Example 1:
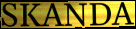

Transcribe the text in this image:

SKANDA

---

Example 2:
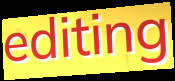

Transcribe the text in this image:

editing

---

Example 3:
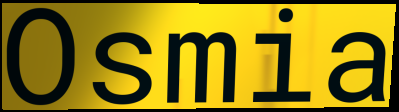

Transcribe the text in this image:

Osmia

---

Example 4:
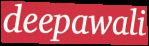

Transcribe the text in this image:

deepawali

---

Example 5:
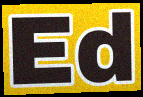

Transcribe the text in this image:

Ed